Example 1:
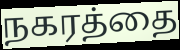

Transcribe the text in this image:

நகரத்தை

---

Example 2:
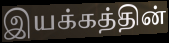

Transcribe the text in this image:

இயக்கத்தின்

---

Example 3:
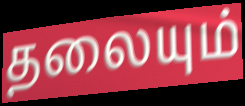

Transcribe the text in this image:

தலையும்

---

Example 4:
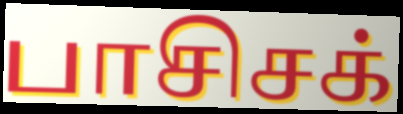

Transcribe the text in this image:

பாசிசக்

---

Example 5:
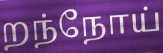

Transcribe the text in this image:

றந்நோய்